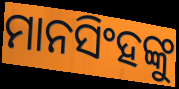
ମାନସିଂହଙ୍କୁ